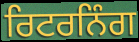
ਰਿਟਰਨਿੰਗ